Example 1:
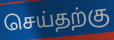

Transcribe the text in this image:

செய்தற்கு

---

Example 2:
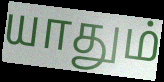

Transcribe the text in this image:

யாதும்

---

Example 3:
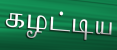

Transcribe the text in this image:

கழட்டிய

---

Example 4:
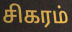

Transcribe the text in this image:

சிகரம்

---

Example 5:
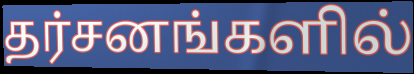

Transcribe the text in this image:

தர்சனங்களில்